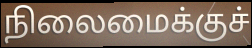
நிலைமைக்குச்